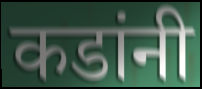
कडांनी